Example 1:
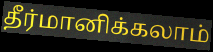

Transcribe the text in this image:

தீர்மானிக்கலாம்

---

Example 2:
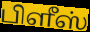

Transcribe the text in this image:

பிளீஸ்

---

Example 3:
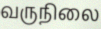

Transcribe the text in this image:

வருநிலை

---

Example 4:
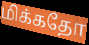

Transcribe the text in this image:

மிக்கதோ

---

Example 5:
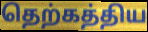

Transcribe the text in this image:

தெற்கத்திய